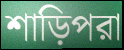
শাড়িপরা